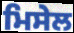
ਮਿਸੇਲ